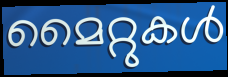
മൈറ്റുകൾ